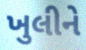
ખુલીને